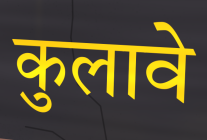
कुलावे